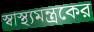
স্বাস্থ্যমন্ত্রকের